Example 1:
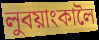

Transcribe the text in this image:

লুবয়াংকালৈ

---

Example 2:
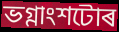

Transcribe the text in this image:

ভগ্নাংশটোৰ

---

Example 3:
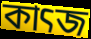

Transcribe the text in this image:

কাৎজ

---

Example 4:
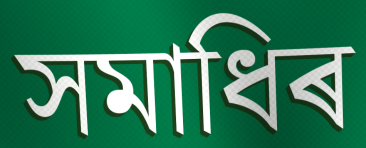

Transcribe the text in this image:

সমাধিৰ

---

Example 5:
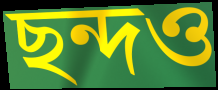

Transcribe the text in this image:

ছন্দও